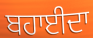
ਬਹਾਈਦਾ